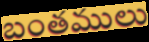
బంతములు